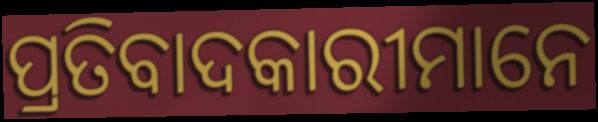
ପ୍ରତିବାଦକାରୀମାନେ